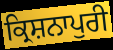
ਕ੍ਰਿਸ਼ਨਾਪੁਰੀ